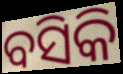
ବସିକି